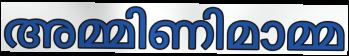
അമ്മിണിമാമ്മ